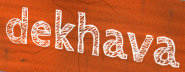
dekhava